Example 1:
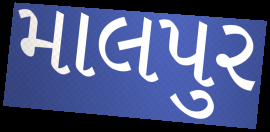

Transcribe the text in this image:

માલપુર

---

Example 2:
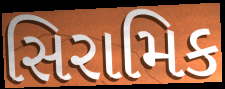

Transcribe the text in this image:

સિરામિક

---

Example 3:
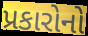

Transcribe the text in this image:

પ્રકારોનો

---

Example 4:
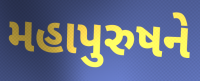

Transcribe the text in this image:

મહાપુરુષને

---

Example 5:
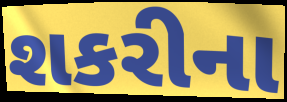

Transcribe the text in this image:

શકરીના